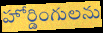
హోర్డింగులను